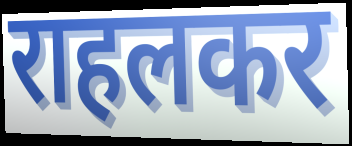
राहलकर